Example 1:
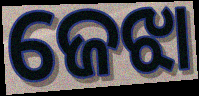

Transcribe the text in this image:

ଜେଝା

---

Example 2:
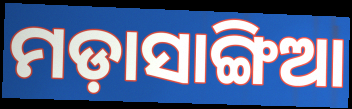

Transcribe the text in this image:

ମଡ଼ାସାଙ୍ଗିଆ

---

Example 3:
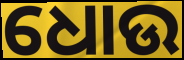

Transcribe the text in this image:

ଧୋଉ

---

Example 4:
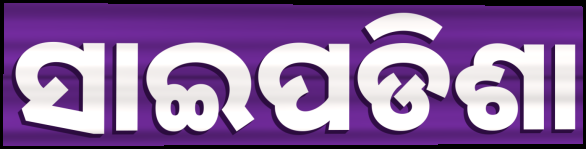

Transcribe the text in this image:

ସାଇପଡିଶା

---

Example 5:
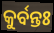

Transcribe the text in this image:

କୁର୍ବନ୍ତଃ